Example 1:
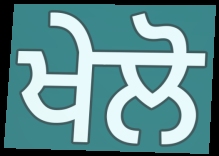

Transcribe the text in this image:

ਖੇਲੋ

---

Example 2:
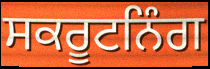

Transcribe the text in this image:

ਸਕਰੂਟਨਿੰਗ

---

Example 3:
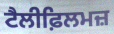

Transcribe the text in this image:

ਟੈਲੀਫ਼ਿਲਮਜ਼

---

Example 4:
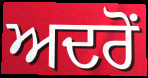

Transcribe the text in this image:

ਅਦਰੋਂ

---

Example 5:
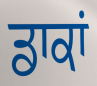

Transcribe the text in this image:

ਡਾਕਾਂ